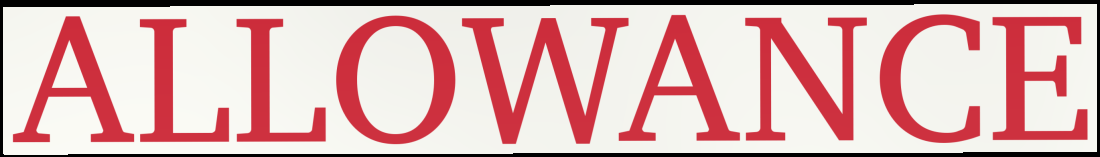
ALLOWANCE